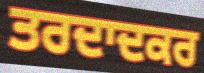
ਤਰਦਾਦਕਰ